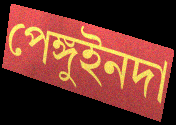
পেঙ্গুইনদা